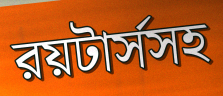
রয়টার্সসহ